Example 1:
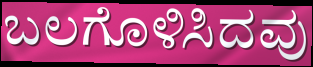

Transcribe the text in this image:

ಬಲಗೊಳಿಸಿದವು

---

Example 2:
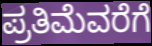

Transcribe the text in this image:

ಪ್ರತಿಮೆವರೆಗೆ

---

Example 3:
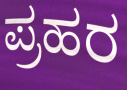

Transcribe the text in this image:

ಪ್ರಹರ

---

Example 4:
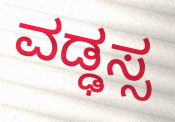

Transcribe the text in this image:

ವಡ್ಢಸ್ಸ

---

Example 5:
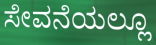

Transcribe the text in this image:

ಸೇವನೆಯಲ್ಲೂ